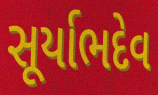
સૂર્યાભદેવ